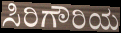
ಸಿರಿಗೌರಿಯ